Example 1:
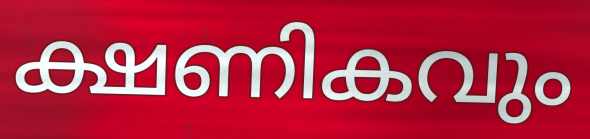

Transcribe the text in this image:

ക്ഷണികവും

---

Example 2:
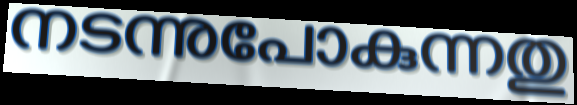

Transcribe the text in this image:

നടന്നുപോകുന്നതു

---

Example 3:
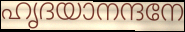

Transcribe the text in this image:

ഹൃദയാനന്ദനേ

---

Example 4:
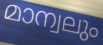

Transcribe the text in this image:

മാന്വലും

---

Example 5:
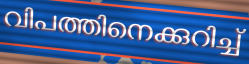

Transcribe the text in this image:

വിപത്തിനെക്കുറിച്ച്